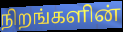
நிறங்களின்